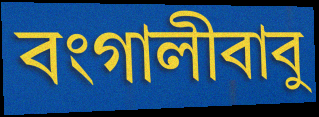
বংগালীবাবু